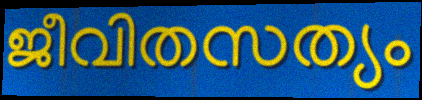
ജീവിതസത്യം